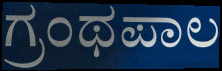
ಗ್ರಂಥಪಾಲ